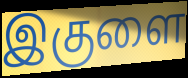
இகுளை